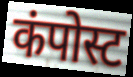
कंपोस्ट